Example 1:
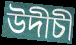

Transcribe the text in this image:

উদীচী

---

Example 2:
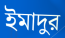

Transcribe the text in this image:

ইমাদুর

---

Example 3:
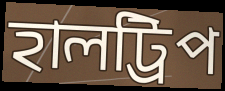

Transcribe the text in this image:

হালট্রিপ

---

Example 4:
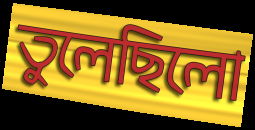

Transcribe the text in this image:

তুলেছিলো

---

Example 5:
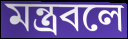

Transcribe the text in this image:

মন্ত্রবলে